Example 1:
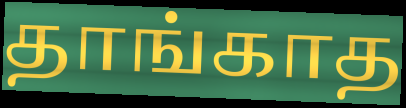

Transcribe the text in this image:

தாங்காத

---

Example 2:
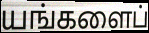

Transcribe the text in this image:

யங்களைப்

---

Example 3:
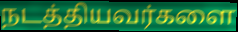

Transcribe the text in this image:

நடத்தியவர்களை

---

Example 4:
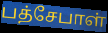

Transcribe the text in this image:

பத்சேபாள்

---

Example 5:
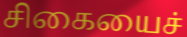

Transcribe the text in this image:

சிகையைச்